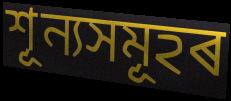
শূন্যসমূহৰ